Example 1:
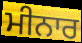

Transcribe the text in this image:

ਮੀਨਾਰ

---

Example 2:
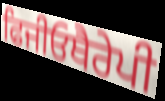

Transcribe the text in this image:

ਫਿਜੀਓਥੈਰੇਪੀ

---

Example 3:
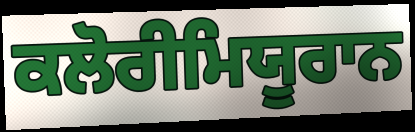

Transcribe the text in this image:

ਕਲੋਰੀਮਿਯੂਰਾਨ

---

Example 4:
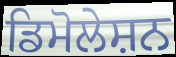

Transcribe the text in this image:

ਡਿਮੋਲੇਸ਼ਨ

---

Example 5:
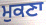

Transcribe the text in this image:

ਮੁਕਣਾ